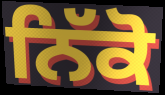
ਨਿੱਕੋ